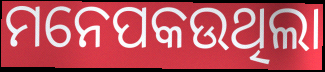
ମନେପକଉଥିଲା